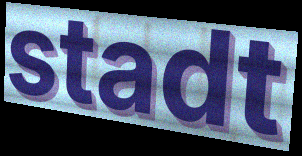
stadt